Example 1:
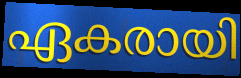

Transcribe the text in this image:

ഏകരായി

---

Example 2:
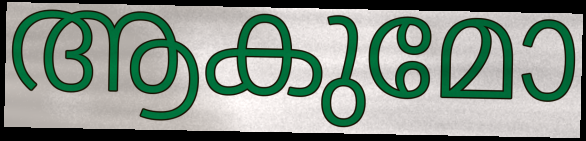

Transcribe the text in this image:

ആകുമോ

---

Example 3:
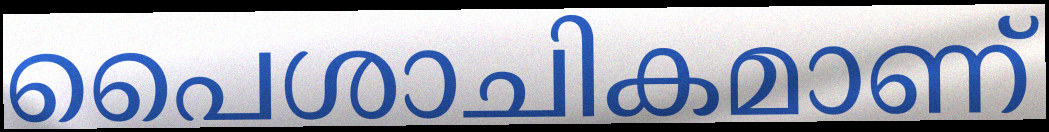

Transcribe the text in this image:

പൈശാചികമാണ്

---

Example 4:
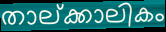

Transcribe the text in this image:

താല്ക്കാലികം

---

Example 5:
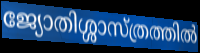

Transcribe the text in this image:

ജ്യോതിശ്ശാസ്ത്രത്തിൽ